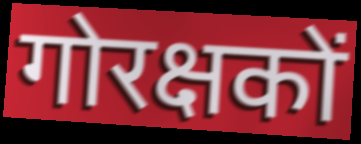
गोरक्षकों